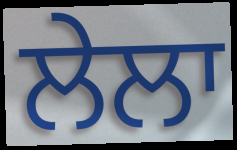
ਲੇਲਾ